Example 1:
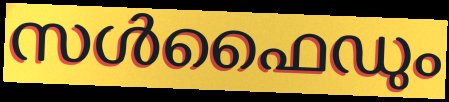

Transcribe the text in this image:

സൾഫൈഡും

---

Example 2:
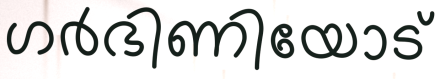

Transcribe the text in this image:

ഗർഭിണിയോട്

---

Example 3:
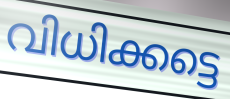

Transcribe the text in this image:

വിധിക്കട്ടെ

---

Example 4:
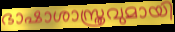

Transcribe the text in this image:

ഭാഷാശാസ്ത്രവുമായി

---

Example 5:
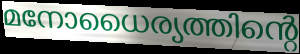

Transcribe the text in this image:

മനോധൈര്യത്തിന്റെ